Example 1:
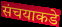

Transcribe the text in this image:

संचयाकडे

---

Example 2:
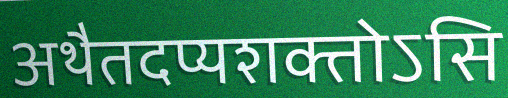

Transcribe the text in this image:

अथैतदप्यशक्तोऽसि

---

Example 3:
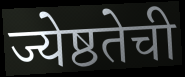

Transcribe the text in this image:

ज्येष्ठतेची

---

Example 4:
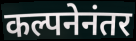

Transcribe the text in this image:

कल्पनेनंतर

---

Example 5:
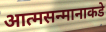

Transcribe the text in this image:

आत्मसन्मानाकडे